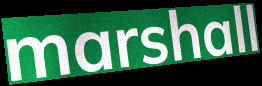
marshall